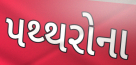
પથ્થરોના